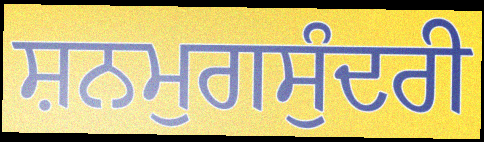
ਸ਼ਨਮੁਗਸੁੰਦਰੀ